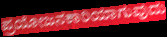
ಪ್ರಯೋಜನಕಾರಿಯಾಗುವುದು